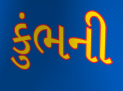
કુંભની